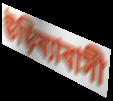
উড়িষ্যাবাসী